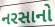
નરસાનો